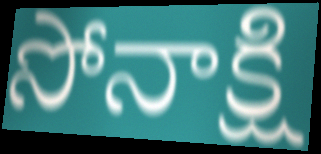
సోనాక్షి